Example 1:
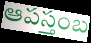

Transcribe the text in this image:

ఆపస్తంబ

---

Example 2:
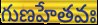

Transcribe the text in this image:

గుణహేతవః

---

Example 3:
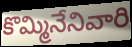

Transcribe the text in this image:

కొమ్మినేనివారి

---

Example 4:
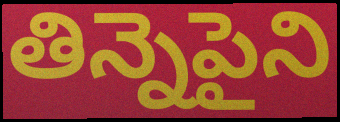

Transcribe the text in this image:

తిన్నెపైని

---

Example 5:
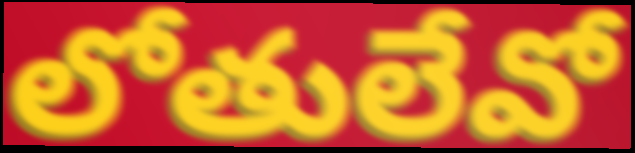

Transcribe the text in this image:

లోతులేవో